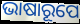
ଭାଷାରୂପେ